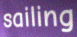
sailing